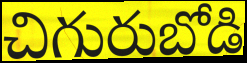
చిగురుబోడి